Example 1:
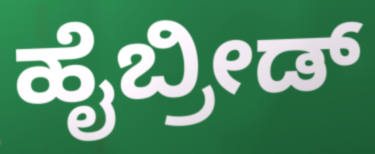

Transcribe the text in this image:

ಹೈಬ್ರೀಡ್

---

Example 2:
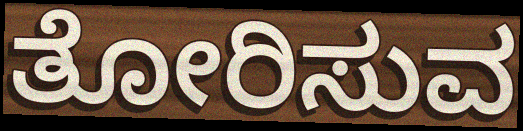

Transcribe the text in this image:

ತೋರಿಸುವ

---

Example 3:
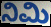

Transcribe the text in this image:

ನಿಮಿ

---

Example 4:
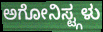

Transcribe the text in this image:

ಅಗೋನಿಸ್ಟ್ಗಳು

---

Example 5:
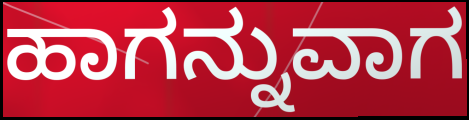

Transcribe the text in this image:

ಹಾಗನ್ನುವಾಗ